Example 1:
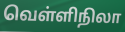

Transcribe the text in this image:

வெள்ளிநிலா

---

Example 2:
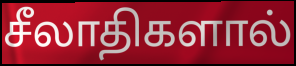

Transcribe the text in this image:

சீலாதிகளால்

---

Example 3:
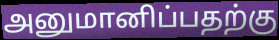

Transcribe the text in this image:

அனுமானிப்பதற்கு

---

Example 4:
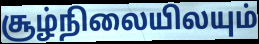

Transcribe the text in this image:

சூழ்நிலையிலயும்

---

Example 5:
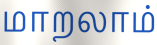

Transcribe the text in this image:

மாறலாம்